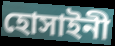
হোসাইনী